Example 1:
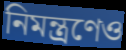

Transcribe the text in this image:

নিমন্ত্রণেও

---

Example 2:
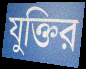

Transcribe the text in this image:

যুক্তির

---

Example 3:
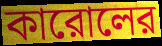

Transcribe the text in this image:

কারোলের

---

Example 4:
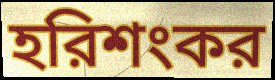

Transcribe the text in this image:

হরিশংকর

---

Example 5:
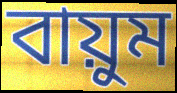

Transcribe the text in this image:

বায়ুম